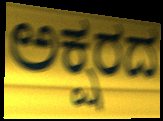
ಅಕ್ಷರದ